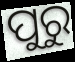
ପୁରୁ